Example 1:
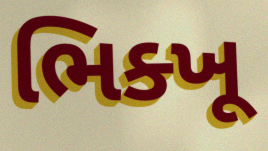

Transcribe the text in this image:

ભિક્ખૂ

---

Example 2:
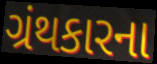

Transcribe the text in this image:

ગ્રંથકારના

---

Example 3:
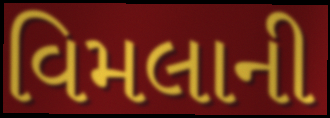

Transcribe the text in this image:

વિમલાની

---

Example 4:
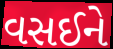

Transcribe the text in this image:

વસઈને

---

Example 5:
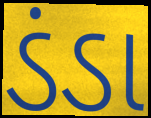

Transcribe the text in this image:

ડંડા